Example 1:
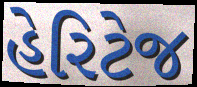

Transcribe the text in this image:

હેરિટેજ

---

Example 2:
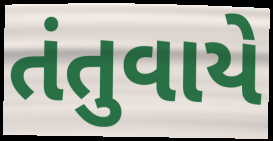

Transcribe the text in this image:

તંતુવાયે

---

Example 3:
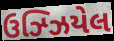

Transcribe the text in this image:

ઉઝ્ઝિયેલ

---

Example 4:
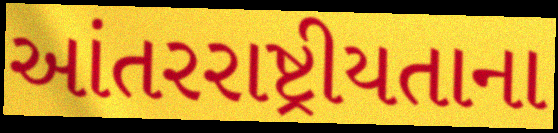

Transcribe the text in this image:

આંતરરાષ્ટ્રીયતાના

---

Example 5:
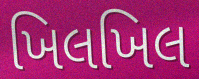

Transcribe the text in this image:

ખિલખિલ